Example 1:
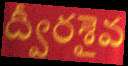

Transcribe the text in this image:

ద్వీరశైవ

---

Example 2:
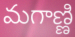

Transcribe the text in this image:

మగాణ్ణి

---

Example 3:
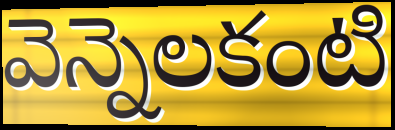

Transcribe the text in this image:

వెన్నెలకంటి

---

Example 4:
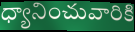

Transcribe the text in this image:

ధ్యానించువారికి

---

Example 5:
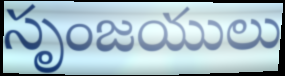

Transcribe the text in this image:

సృంజయులు